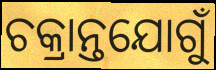
ଚକ୍ରାନ୍ତଯୋଗୁଁ